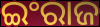
ଇଂରାଜ